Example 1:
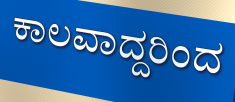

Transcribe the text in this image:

ಕಾಲವಾದ್ದರಿಂದ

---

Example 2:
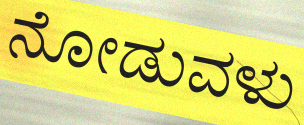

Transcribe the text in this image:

ನೋಡುವಳು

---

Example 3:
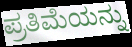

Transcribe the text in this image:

ಪ್ರತಿಮೆಯನ್ನು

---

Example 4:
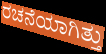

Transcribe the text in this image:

ರಚನೆಯಾಗಿತ್ತು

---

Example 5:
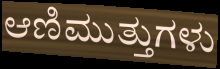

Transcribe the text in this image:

ಆಣಿಮುತ್ತುಗಳು